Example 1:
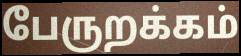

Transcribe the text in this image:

பேருறக்கம்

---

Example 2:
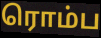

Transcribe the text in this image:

ரொம்ப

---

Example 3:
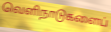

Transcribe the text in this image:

வெளிநாடுகளைப்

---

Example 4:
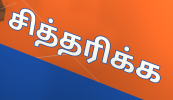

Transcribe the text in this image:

சித்தரிக்க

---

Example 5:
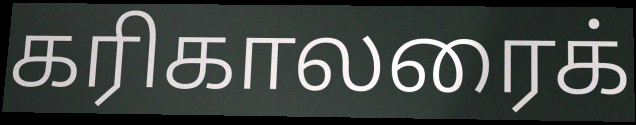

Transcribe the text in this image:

கரிகாலரைக்